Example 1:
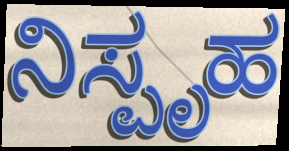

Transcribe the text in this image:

ನಿಸ್ಪೃಹ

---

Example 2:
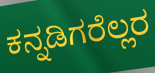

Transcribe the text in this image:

ಕನ್ನಡಿಗರೆಲ್ಲರ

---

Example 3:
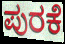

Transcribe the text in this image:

ಪುರಕೆ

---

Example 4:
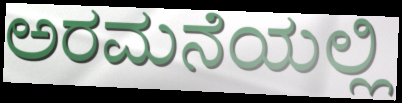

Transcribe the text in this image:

ಅರಮನೆಯಲ್ಲಿ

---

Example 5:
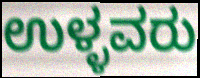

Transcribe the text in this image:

ಉಳ್ಳವರು